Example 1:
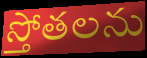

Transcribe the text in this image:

స్తోతలను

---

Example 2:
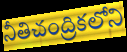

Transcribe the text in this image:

నీతిచంద్రికలోని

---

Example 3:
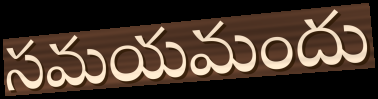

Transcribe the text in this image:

సమయమందు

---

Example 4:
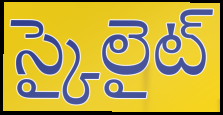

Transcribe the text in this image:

స్కైలైట్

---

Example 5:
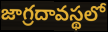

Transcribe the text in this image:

జాగ్రదావస్థలో